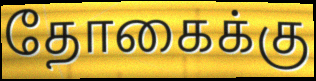
தோகைக்கு